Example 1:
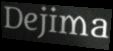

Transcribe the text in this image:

Dejima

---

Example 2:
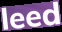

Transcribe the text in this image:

leed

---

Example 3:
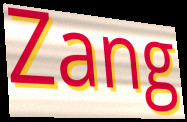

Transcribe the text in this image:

Zang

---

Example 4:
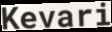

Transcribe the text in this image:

Kevari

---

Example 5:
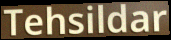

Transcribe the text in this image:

Tehsildar